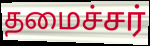
தமைச்சர்